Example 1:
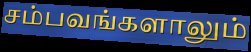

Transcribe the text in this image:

சம்பவங்களாலும்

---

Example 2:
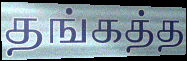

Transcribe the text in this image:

தங்கத்த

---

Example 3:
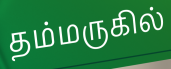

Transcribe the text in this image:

தம்மருகில்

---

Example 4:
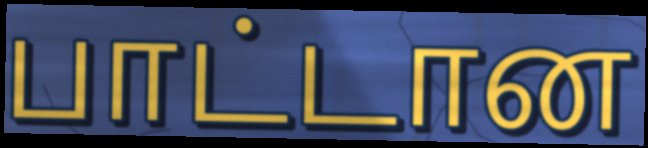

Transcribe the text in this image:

பாட்டான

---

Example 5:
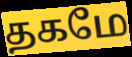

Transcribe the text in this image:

தகமே